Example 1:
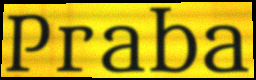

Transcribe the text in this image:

Praba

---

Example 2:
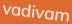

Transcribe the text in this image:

vadivam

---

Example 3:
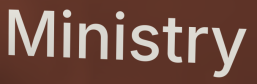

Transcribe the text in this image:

Ministry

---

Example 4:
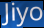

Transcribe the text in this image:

Jiyo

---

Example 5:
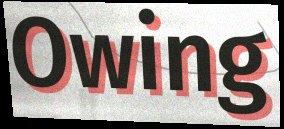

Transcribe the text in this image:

Owing